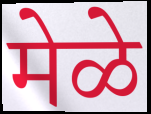
मेळे